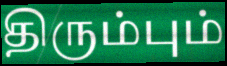
திரும்பும்